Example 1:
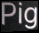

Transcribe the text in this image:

Pig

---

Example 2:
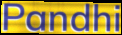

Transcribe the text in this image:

Pandhi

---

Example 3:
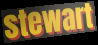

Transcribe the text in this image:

stewart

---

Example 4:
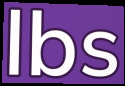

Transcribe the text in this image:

lbs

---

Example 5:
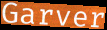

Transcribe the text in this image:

Garver